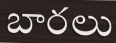
బారలు